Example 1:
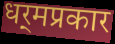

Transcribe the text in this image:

धर्मप्रकार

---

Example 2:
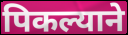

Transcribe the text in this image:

पिकल्याने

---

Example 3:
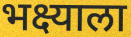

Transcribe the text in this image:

भक्ष्याला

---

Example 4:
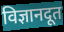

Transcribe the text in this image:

विज्ञानदूत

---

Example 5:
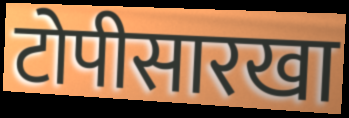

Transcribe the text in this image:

टोपीसारखा